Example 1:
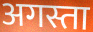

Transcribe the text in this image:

अगस्ता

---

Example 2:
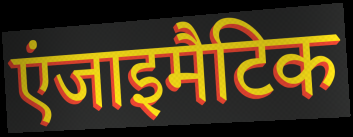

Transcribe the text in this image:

एंजाइमैटिक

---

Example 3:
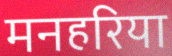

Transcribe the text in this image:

मनहरिया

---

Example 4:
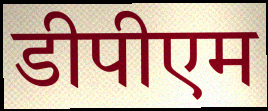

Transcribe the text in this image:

डीपीएम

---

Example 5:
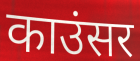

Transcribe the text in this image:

काउंसर